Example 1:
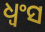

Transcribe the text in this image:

ଧ୍ଵଂସ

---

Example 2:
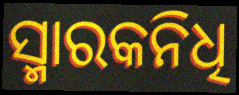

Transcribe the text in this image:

ସ୍ମାରକନିଧି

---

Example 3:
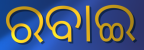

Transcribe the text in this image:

ରବାଇ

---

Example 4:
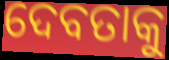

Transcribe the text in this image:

ଦେବତାକୁ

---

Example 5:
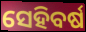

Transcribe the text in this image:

ସେହିବର୍ଷ